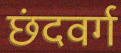
छंदवर्ग